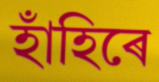
হাঁহিৰে